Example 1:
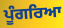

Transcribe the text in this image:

ਪੂੰਗਰਿਆ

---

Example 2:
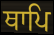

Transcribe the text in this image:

ਥਾਪਿ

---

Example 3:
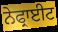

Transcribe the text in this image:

ਨੇਫ੍ਰਾਈਟ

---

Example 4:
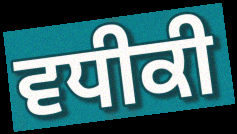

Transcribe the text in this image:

ਵਧੀਕੀ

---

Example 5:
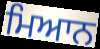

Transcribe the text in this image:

ਮਿਆਨ